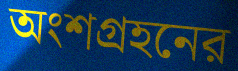
অংশগ্রহনের